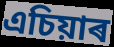
এচিয়াৰ